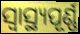
ସ୍ବାସ୍ଥ୍ୟପୂର୍ଣ୍ଣ